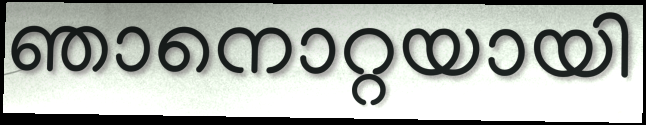
ഞാനൊറ്റയായി